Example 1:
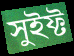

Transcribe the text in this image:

সুইফ্ট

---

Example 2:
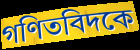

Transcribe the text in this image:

গণিতবিদকে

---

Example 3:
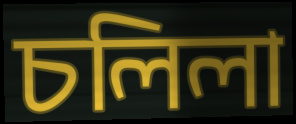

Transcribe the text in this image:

চলিলা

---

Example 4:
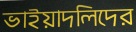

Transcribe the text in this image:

ভাইয়াদলিদের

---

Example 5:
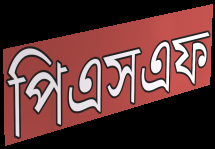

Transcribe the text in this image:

পিএসএফ